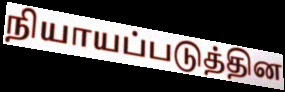
நியாயப்படுத்தின